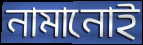
নামানোই